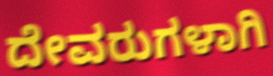
ದೇವರುಗಳಾಗಿ